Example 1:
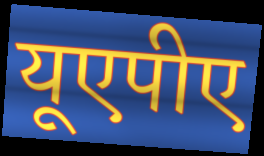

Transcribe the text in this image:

यूएपीए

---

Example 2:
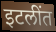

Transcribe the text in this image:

इटलींत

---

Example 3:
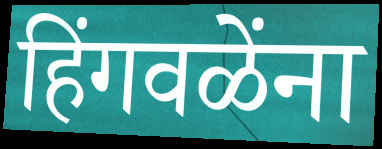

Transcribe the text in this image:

हिंगवळेंना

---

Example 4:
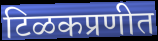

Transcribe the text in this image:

टिळकप्रणीत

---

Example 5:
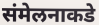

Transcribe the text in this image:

संमेलनाकडे